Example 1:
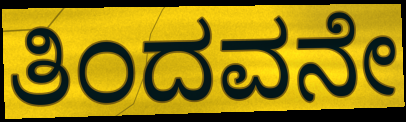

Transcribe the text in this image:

ತಿಂದವನೇ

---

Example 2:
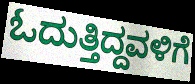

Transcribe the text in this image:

ಓದುತ್ತಿದ್ದವಳಿಗೆ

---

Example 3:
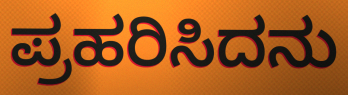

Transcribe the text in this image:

ಪ್ರಹರಿಸಿದನು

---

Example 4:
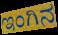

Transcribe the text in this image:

ಇಂಗಿನ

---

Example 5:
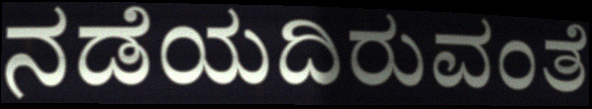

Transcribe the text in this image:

ನಡೆಯದಿರುವಂತೆ